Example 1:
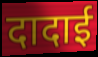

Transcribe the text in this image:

दादाई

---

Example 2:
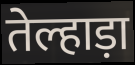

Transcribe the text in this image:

तेल्हाड़ा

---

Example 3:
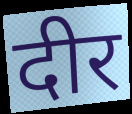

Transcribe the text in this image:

दीर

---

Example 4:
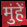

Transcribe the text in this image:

मुंहें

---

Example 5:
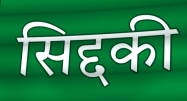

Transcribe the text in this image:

सिद्दकी